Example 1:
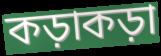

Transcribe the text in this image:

কড়াকড়া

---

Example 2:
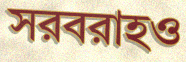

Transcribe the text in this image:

সরবরাহও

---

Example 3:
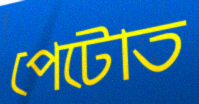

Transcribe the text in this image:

পেটোত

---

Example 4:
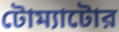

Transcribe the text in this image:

টোম্যাটোর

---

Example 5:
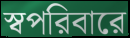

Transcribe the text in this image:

স্বপরিবারে